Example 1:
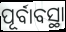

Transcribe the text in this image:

ପୂର୍ବାବସ୍ଥା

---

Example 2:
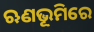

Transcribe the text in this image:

ଋଣଭୂମିରେ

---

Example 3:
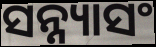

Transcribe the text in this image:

ସନ୍ନ୍ୟାସଂ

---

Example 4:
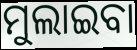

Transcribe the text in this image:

ମୁଲାଇବା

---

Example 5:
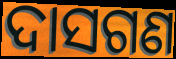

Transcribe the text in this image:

ଦାସଗଣ